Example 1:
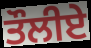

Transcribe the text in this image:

ਤੌਲੀਏ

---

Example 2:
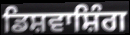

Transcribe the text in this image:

ਡਿਸ਼ਵਾਸ਼ਿੰਗ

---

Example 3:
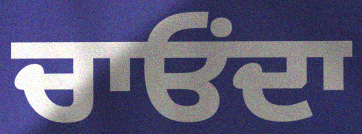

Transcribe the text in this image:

ਚਾਓਂਦਾ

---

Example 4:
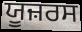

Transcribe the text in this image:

ਯੂਜ਼ਰਸ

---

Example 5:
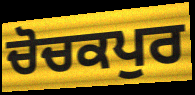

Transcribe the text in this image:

ਚੋਚਕਪੁਰ